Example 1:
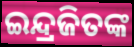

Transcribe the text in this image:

ଇନ୍ଦ୍ରଜିତଙ୍କ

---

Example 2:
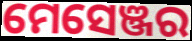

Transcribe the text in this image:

ମେସେଞ୍ଜର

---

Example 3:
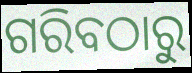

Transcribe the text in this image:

ଗରିବଠାରୁ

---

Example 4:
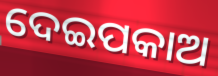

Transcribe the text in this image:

ଦେଇପକାଅ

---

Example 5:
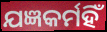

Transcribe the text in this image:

ଯଜ୍ଞକର୍ମହିଁ